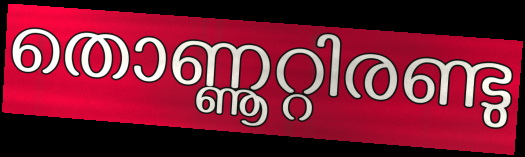
തൊണ്ണൂറ്റിരണ്ടു